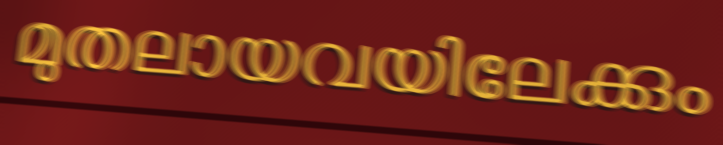
മുതലായവയിലേക്കും